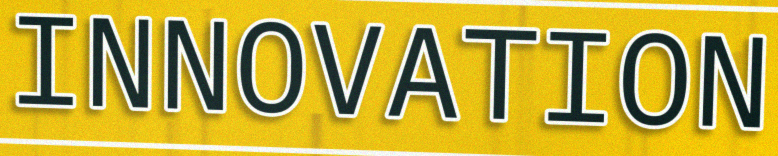
INNOVATION